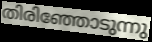
തിരിഞ്ഞോടുന്നു